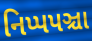
નિપ્પપઞ્ચા